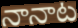
నానాట